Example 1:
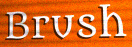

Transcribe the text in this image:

Brush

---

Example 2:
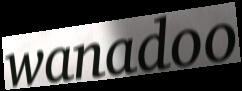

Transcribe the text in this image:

wanadoo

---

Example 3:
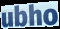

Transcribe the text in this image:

ubho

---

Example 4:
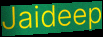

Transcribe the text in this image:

Jaideep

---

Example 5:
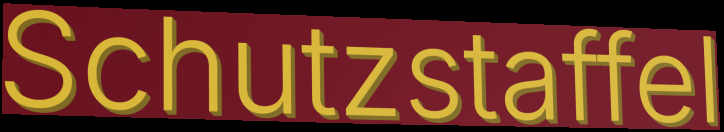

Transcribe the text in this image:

Schutzstaffel